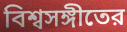
বিশ্বসঙ্গীতের